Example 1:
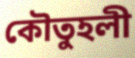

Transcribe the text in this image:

কৌতুহলী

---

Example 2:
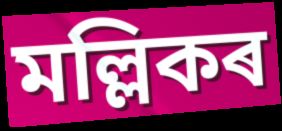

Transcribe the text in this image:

মল্লিকৰ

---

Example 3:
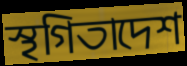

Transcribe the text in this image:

স্থগিতাদেশ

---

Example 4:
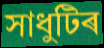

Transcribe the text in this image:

সাধুটিৰ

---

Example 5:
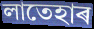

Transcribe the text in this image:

লাতেহাৰ